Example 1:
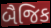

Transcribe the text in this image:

બૈજિક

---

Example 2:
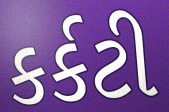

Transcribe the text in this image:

કર્કટી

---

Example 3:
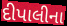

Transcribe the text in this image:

દીપાલીના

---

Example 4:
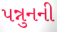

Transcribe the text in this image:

પન્નુનની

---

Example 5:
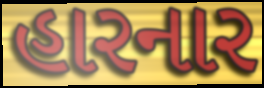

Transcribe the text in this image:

હારનાર